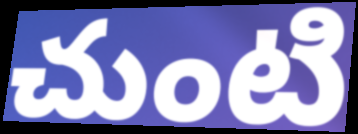
చుంటి